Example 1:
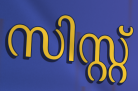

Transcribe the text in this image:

സിസ്റ്റ്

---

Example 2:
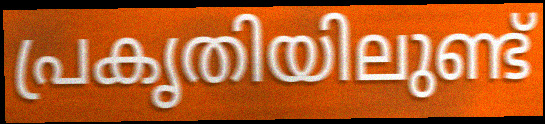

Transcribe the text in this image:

പ്രകൃതിയിലുണ്ട്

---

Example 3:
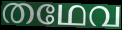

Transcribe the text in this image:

തഥേവ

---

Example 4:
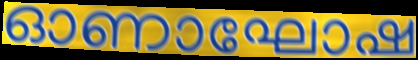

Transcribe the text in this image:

ഓണാഘോഷ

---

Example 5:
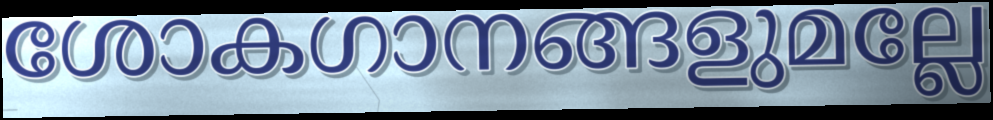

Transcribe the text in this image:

ശോകഗാനങ്ങളുമല്ലേ